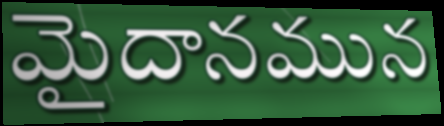
మైదానమున